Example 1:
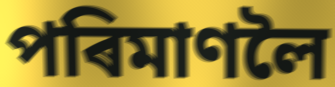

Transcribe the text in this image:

পৰিমাণলৈ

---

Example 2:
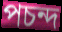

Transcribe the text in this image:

পচন্দ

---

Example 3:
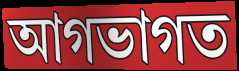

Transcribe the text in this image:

আগভাগত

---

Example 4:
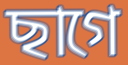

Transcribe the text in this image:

ছাগে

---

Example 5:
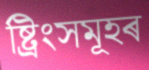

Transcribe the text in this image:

ষ্ট্ৰিংসমূহৰ